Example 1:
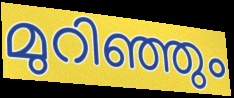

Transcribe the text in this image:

മുറിഞ്ഞും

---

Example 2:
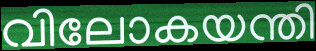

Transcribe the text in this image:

വിലോകയന്തി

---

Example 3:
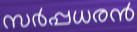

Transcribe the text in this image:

സർപ്പധരൻ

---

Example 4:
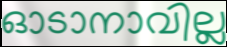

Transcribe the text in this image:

ഓടാനാവില്ല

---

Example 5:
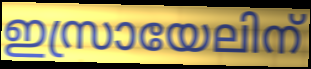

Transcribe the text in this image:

ഇസ്രായേലിന്